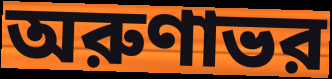
অরুণাভর